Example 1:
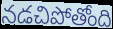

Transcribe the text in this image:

నడచిపోతోంది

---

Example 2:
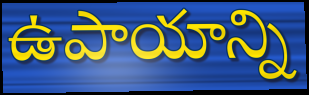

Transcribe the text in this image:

ఉపాయాన్ని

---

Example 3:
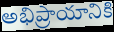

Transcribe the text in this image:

అభిప్రాయానికి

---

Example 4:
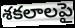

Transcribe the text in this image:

శకలాలపై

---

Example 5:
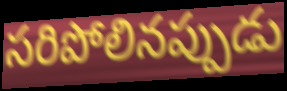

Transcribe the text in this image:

సరిపోలినప్పుడు